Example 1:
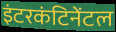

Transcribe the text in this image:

इंटरकंटिनेंटल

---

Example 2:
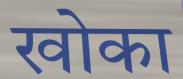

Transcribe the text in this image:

खोका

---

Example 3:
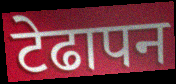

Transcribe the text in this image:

टेढापन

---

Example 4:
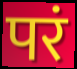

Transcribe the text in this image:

परं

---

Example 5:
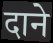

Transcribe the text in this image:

दाने